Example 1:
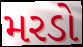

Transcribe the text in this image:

મરડો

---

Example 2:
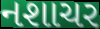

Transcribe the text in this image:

નશાચર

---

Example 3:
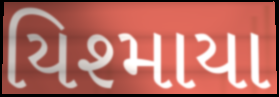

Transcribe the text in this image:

યિશ્માયા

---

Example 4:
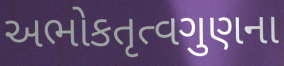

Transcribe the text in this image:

અભોકતૃત્વગુણના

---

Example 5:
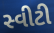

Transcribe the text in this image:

સ્વીટી